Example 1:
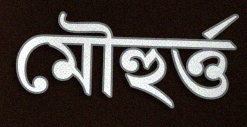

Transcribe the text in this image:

মৌহুৰ্ত্ত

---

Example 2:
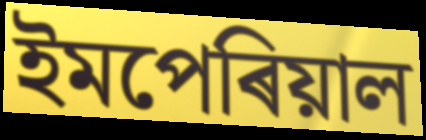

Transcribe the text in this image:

ইমপেৰিয়াল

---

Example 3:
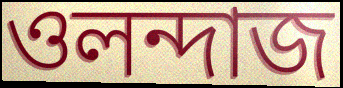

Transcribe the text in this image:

ওলন্দাজ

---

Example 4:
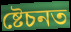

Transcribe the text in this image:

ষ্টেচনত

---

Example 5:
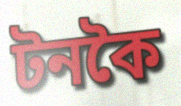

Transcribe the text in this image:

টনকৈ